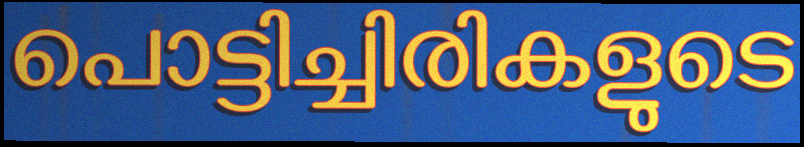
പൊട്ടിച്ചിരികളുടെ